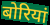
बोरियां